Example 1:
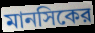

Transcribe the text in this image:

মানসিকের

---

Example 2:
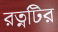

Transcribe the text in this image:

রত্নটির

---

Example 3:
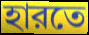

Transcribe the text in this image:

হারতে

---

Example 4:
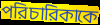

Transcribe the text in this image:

পরিচারিকাকে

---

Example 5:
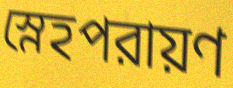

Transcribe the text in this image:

স্নেহপরায়ণ